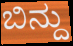
ಬಿನ್ದು